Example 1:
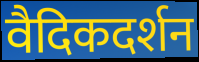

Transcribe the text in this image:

वैदिकदर्शन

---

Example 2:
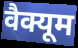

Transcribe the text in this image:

वैक्यूम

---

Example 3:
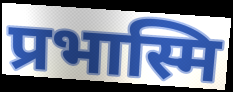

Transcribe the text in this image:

प्रभास्मि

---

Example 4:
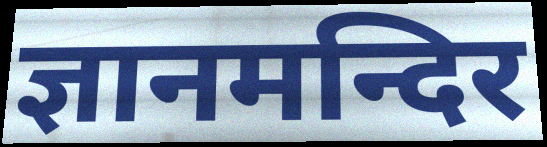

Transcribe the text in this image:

ज्ञानमन्दिर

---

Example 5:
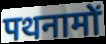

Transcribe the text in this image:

पथनामों